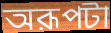
অরূপটা